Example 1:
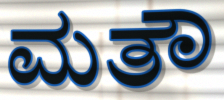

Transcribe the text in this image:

ಮತೌ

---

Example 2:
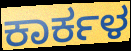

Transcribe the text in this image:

ಕಾರ್ಕಳ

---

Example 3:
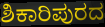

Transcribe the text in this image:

ಶಿಕಾರಿಪುರದ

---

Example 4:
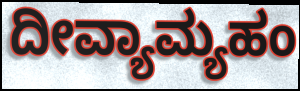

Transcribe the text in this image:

ದೀವ್ಯಾಮ್ಯಹಂ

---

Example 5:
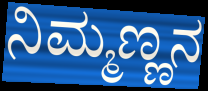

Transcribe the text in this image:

ನಿಮ್ಮಣ್ಣನ